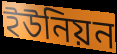
ইউনিয়ন